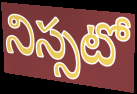
నిస్సటో